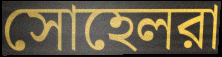
সোহেলরা